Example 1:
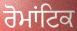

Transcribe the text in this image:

ਰੋਮਾਂਟਿਕ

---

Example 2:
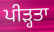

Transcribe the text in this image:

ਪੀੜ੍ਹਤਾ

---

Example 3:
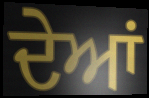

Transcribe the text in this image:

ਦੇਆਂ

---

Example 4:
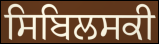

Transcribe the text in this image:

ਸਿਬਿਲਸਕੀ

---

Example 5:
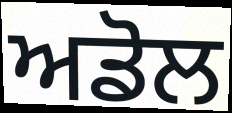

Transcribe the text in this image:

ਅਡੋਲ